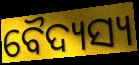
ବୈଦ୍ୟସ୍ୟ